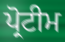
ਪ੍ਰੋਟੀਮ